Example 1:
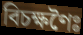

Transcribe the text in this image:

বিচক্ষণৈঃ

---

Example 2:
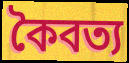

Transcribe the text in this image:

কৈবত্য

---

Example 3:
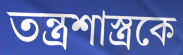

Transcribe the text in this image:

তন্ত্রশাস্ত্রকে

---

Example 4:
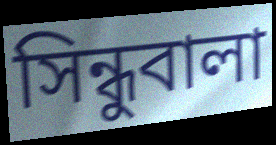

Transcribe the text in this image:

সিন্ধুবালা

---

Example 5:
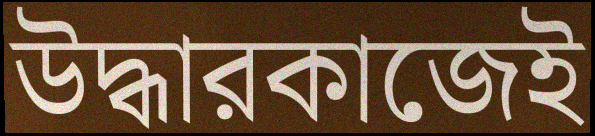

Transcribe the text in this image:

উদ্ধারকাজেই